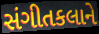
સંગીતકલાને